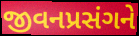
જીવનપ્રસંગને